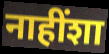
नाहींशा